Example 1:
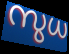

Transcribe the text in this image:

സുധ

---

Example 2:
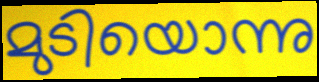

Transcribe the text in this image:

മുടിയൊന്നു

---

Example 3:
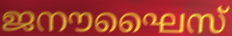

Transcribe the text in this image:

ജനൗഘൈസ്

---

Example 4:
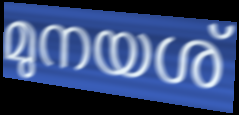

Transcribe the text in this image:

മുനയശ്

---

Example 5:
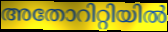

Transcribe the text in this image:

അതോറിറ്റിയിൽ